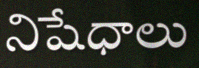
నిషేధాలు